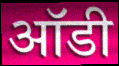
ऑडी